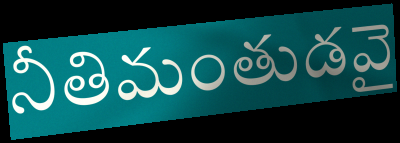
నీతిమంతుడవై